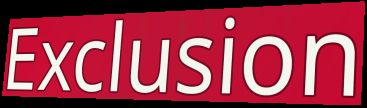
Exclusion